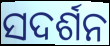
ସଦର୍ଶନ